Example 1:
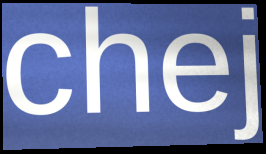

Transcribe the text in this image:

chej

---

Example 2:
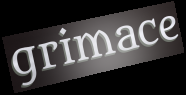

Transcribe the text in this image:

grimace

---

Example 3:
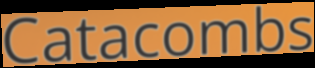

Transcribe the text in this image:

Catacombs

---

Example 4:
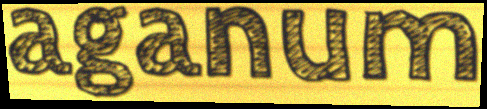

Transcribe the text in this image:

aganum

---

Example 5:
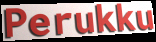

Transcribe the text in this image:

Perukku